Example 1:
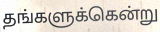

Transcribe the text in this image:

தங்களுக்கென்று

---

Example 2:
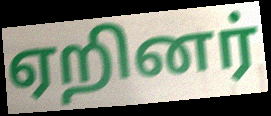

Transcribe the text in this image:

ஏறினர்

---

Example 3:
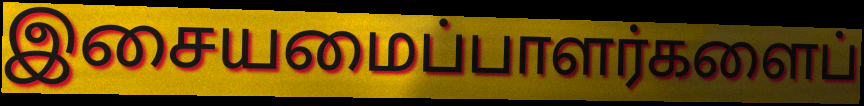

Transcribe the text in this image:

இசையமைப்பாளர்களைப்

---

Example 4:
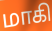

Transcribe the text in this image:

மாகி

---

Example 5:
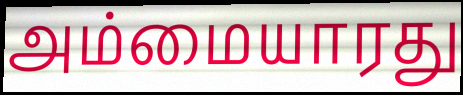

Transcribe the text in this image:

அம்மையாரது